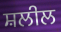
ਸ਼ਲੀਲ